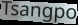
Tsangpo